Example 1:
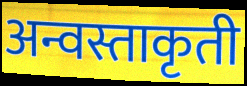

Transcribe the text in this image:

अन्वस्ताकृती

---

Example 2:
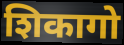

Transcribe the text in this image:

शिकागो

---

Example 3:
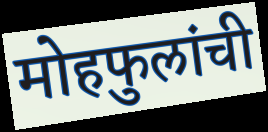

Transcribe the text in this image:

मोहफुलांची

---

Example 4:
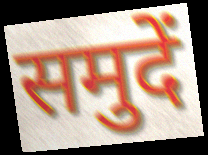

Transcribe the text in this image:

समुदें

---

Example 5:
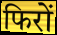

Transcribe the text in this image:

फिरों